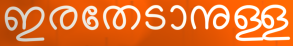
ഇരതേടാനുള്ള